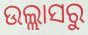
ଉଲ୍ଲାସରୁ